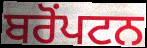
ਬਰੋਂਪਟਨ